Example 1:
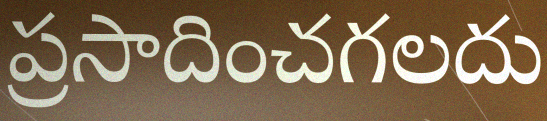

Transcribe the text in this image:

ప్రసాదించగలదు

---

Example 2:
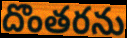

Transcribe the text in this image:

దొంతరను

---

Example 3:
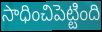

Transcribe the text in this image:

సాధించిపెట్టింది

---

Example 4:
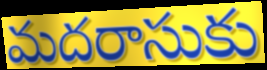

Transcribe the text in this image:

మదరాసుకు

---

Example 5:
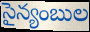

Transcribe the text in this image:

సైన్యంబుల